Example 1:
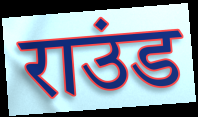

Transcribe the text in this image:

राउंड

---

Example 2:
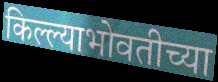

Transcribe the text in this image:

किल्ल्याभोवतीच्या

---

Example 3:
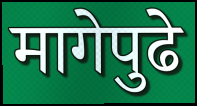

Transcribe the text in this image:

मागेपुढे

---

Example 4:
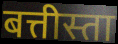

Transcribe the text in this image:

बत्तीस्ता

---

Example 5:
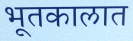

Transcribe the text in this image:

भूतकालात